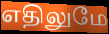
எதிலுமே